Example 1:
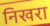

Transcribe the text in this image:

निखरा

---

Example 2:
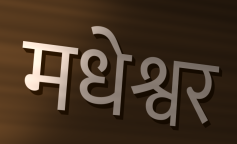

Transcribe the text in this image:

मधेश्वर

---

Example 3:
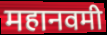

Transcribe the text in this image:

महानवमी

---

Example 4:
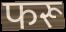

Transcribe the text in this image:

फरू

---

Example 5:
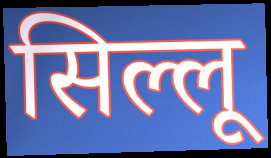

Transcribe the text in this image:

सिल्लू